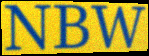
NBW